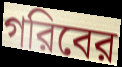
গরিবের